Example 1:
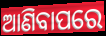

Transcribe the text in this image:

ଆଣିବାପରେ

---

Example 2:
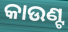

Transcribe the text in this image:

କାଉଣ୍ଟ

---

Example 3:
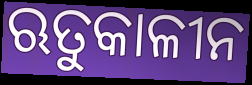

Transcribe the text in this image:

ଋତୁକାଳୀନ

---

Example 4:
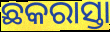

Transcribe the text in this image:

ଛକରାସ୍ତା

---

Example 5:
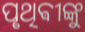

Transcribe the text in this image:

ପୃଥିଵୀଙ୍କୁ